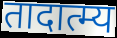
तादात्म्य